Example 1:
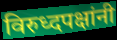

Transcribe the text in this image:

विरुध्दपक्षांनी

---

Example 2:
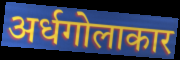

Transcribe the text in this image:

अर्धगोलाकार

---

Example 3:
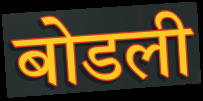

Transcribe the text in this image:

बोडली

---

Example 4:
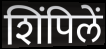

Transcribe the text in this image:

शिंपिलें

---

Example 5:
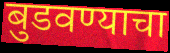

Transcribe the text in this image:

बुडवण्याचा